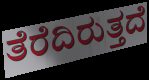
ತೆರೆದಿರುತ್ತದೆ